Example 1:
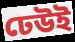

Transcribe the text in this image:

ঢেউই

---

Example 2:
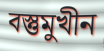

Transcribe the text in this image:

বস্তুমুখীন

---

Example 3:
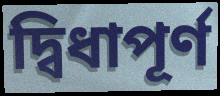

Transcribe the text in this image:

দ্বিধাপূর্ণ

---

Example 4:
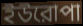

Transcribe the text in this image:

ইউরোপা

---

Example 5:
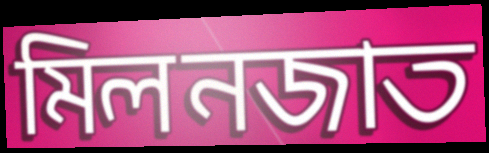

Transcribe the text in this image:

মিলনজাত